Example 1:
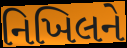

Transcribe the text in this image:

નિખિલને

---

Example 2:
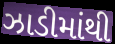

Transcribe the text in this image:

ઝાડીમાંથી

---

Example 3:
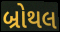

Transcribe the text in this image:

બ્રોથલ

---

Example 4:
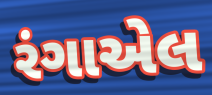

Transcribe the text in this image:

રંગાએલ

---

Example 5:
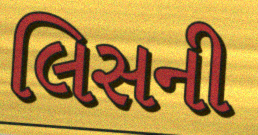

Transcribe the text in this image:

લિસની